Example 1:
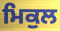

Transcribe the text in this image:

ਮਿਕੁਲ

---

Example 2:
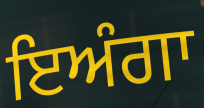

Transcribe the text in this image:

ਇਅੰਗਾ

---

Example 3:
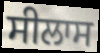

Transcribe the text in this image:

ਸੀਲਾਸ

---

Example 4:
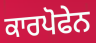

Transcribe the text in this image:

ਕਾਰਪੋਫੇਨ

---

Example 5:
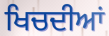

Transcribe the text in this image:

ਖਿਚਦੀਆਂ